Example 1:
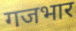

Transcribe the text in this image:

गजभार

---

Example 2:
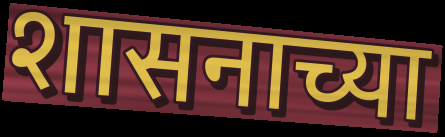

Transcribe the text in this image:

शासनाच्या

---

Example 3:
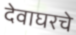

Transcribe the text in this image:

देवाघरचे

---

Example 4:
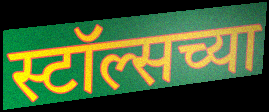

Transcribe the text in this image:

स्टॉल्सच्या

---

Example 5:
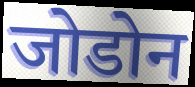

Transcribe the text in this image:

जोडोन